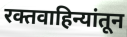
रक्तवाहिन्यांतून